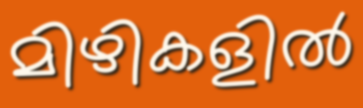
മിഴികളിൽ